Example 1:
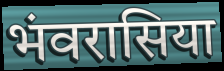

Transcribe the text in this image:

भंवरासिया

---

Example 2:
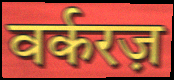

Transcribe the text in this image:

वर्करज़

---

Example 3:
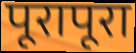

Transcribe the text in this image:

पूरापूरा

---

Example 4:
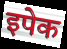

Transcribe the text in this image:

इपेक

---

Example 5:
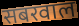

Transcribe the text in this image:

सबरवाल